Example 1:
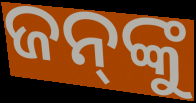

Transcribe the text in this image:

ଜନ୍‍ଙ୍କୁ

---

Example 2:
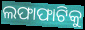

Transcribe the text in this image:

ଲଫାଫାଟିକୁ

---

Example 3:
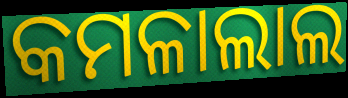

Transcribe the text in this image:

କମଳାଲାଲ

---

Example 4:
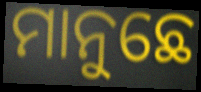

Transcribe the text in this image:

ମାନୁଛେ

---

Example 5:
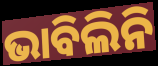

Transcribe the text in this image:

ଭାବିଲିନି